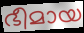
ഭീമായ